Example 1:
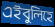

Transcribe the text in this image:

এইবুলিহে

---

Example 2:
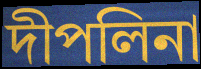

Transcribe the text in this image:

দীপলিনা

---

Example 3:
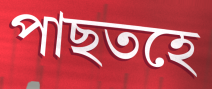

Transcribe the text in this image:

পাছতহে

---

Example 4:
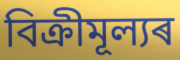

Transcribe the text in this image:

বিক্ৰীমূল্যৰ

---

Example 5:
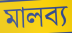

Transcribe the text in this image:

মালব্য